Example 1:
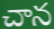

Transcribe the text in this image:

చాన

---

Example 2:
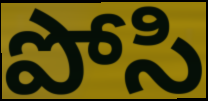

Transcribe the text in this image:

పోసి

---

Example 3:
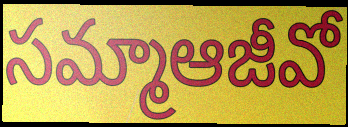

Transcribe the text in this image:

సమ్మాఆజీవో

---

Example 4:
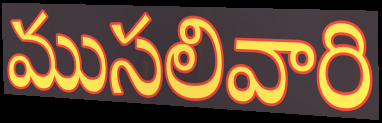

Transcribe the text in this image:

ముసలివారి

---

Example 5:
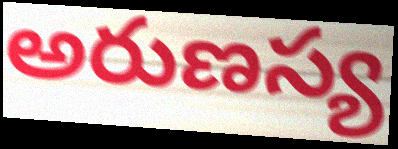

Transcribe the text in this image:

అరుణస్య